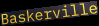
Baskerville